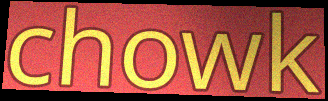
chowk